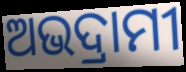
ଅଭଦ୍ରାମୀ